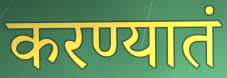
करण्यातं